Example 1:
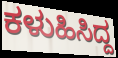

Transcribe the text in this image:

ಕಳುಹಿಸಿದ್ದ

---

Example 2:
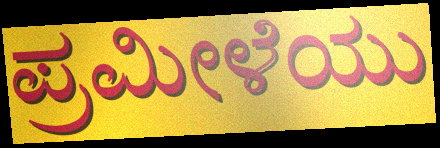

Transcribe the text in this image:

ಪ್ರಮೀಳೆಯು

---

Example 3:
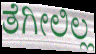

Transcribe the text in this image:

ತೆಗೀಲಿಲ್ಲ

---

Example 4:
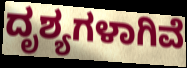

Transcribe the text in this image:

ದೃಶ್ಯಗಳಾಗಿವೆ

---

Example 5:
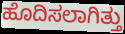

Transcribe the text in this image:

ಹೊದಿಸಲಾಗಿತ್ತು